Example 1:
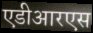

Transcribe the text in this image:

एडीआरएस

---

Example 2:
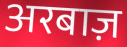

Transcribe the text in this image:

अरबाज़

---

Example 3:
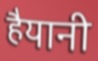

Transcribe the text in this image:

हैयानी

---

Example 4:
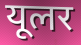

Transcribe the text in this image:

यूलर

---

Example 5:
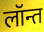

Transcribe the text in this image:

लॉन्त